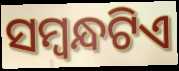
ସମ୍ବନ୍ଧଟିଏ